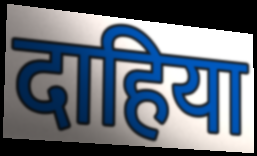
दाहिया